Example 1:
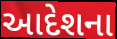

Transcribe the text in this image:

આદેશના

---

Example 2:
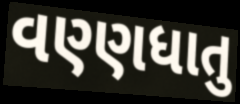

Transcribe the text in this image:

વણ્ણધાતુ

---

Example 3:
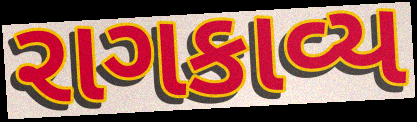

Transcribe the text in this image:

રાગકાવ્ય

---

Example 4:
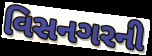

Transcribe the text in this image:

વિસનગરની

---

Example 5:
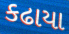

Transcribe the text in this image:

કઢાયા